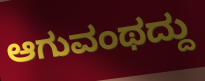
ಆಗುವಂಥದ್ದು